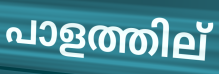
പാളത്തില്